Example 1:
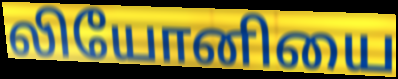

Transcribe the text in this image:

லியோனியை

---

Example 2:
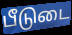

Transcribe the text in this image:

பீடுடை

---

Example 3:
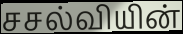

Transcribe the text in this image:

சசல்வியின்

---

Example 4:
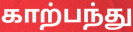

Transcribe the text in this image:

காற்பந்து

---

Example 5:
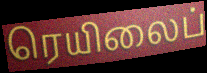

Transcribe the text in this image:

ரெயிலைப்